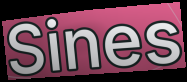
Sines